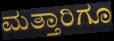
ಮತ್ತಾರಿಗೂ